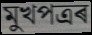
মুখপত্ৰৰ